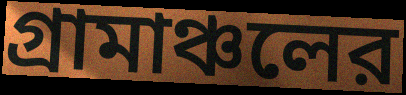
গ্রামাঞ্চলের